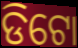
ଡିଟୋ